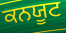
ਕਨਯੂਟ